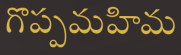
గొప్పమహిమ